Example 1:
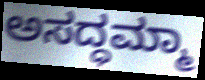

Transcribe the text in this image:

ಅಸದ್ಧಮ್ಮಾ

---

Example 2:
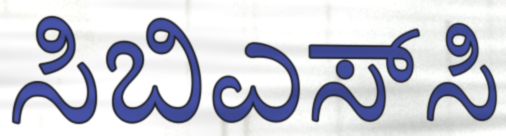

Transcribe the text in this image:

ಸಿಬಿಎಸ್‌ಸಿ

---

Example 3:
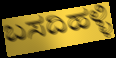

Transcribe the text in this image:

ಬಸದಿಹಳ್ಳಿ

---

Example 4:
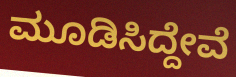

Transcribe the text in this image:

ಮೂಡಿಸಿದ್ದೇವೆ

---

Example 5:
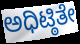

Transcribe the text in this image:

ಅಧಿಟ್ಠಿತೇ